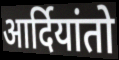
आर्दियांतो